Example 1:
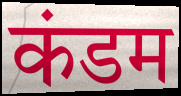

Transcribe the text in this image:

कंडम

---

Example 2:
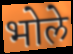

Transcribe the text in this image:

भोले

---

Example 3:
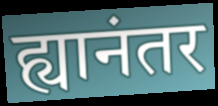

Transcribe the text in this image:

ह्यानंतर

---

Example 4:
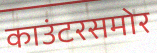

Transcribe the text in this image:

काउंटरसमोर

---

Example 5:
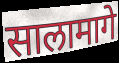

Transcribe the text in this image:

सालामागे